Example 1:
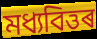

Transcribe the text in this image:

মধ্যবিত্তৰ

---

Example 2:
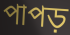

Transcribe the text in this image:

পাপড়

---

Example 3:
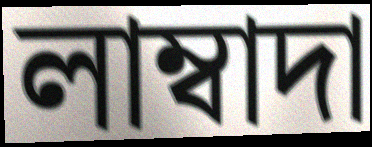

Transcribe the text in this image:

লাম্বাদা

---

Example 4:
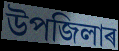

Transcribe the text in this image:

উপজিলাৰ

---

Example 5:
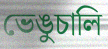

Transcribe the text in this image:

ভেঙুচালি